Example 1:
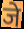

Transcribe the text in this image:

जे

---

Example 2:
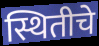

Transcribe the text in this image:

स्थितीचे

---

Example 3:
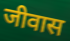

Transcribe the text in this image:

जीवास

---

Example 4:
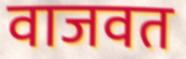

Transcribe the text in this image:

वाजवत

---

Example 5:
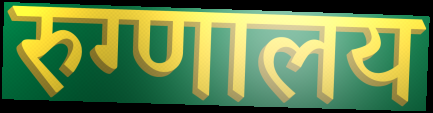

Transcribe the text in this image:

रुग्णालय